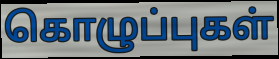
கொழுப்புகள்